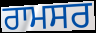
ਰਾਮਸਰ